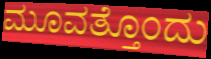
ಮೂವತ್ತೊಂದು